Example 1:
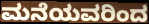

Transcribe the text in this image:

ಮನೆಯವರಿಂದ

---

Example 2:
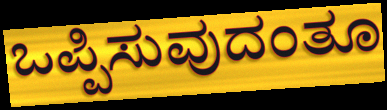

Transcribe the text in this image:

ಒಪ್ಪಿಸುವುದಂತೂ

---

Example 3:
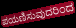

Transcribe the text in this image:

ಪಯಣಿಸುವುದರಿಂದ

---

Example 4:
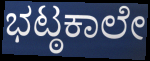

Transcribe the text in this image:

ಭಟ್ಠಕಾಲೇ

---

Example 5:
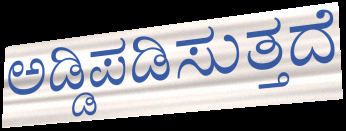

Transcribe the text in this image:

ಅಡ್ಡಿಪಡಿಸುತ್ತದೆ